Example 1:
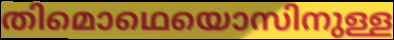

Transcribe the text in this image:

തിമൊഥെയൊസിനുള്ള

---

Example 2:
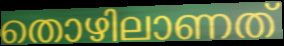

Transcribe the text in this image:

തൊഴിലാണത്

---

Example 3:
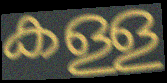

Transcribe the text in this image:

കള്ള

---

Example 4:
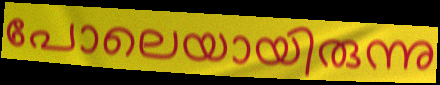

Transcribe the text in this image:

പോലെയായിരുന്നു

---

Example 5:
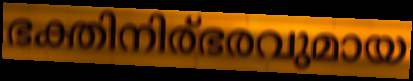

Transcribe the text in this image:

ഭക്തിനിര്ഭരവുമായ